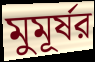
মুমূর্ষর